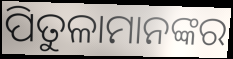
ପିତୁଳାମାନଙ୍କର